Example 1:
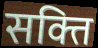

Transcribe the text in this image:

सक्ति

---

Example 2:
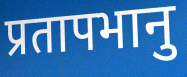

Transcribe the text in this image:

प्रतापभानु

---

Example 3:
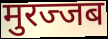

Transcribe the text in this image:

मुरज्जब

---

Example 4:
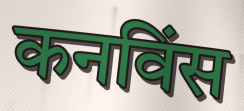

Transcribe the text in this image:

कनविंस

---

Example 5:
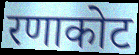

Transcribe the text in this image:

रणाकोट